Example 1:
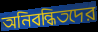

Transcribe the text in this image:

অনিবন্ধিতদের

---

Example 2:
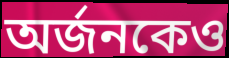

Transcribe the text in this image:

অর্জনকেও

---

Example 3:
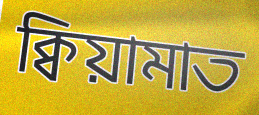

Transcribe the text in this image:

ক্বিয়ামাত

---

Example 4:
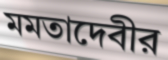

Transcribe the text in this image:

মমতাদেবীর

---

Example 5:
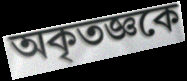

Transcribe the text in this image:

অকৃতজ্ঞকে